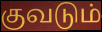
குவடும்